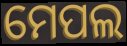
ମେପଲ